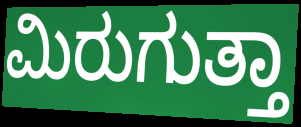
ಮಿರುಗುತ್ತಾ